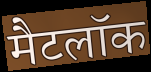
मैटलॉक